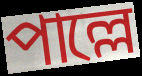
পাল্লে